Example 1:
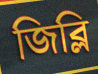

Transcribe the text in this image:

জিব্লি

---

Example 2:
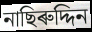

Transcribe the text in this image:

নাছিৰুদ্দিন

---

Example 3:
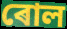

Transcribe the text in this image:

ৰোল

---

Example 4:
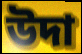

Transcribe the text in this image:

উদা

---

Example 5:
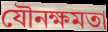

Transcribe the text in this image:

যৌনক্ষমতা